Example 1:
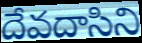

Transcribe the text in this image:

దేవదాసిని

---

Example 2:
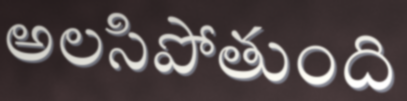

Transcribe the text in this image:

అలసిపోతుంది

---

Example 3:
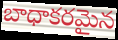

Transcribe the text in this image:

బాధాకరమైన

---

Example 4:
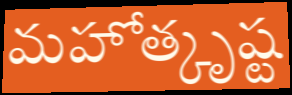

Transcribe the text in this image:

మహోత్కృష్ట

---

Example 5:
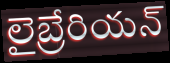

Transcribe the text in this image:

లైబ్రేరియన్